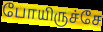
போயிருச்சே